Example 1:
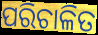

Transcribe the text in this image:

ପରିଚାଳିତ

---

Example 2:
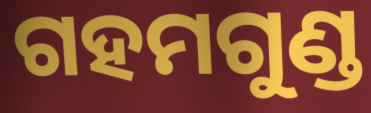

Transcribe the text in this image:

ଗହମଗୁଣ୍ଡ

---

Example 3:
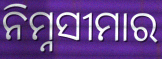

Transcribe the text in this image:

ନିମ୍ନସୀମାର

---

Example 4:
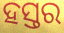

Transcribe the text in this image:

ହସ୍ତର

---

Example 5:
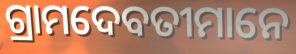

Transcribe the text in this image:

ଗ୍ରାମଦେବତୀମାନେ